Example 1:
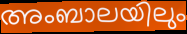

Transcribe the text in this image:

അംബാലയിലും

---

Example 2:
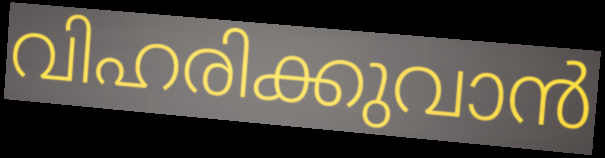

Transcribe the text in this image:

വിഹരിക്കുവാൻ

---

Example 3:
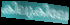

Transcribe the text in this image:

കിലുകിലേ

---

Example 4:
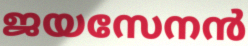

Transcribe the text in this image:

ജയസേനൻ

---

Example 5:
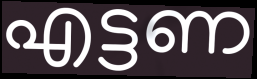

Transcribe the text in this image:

എട്ടണ